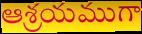
ఆశ్రయముగా